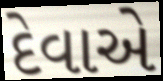
દેવાએ